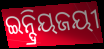
ଇନ୍ଦ୍ରିୟଜୟୀ